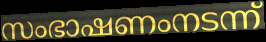
സംഭാഷണംനടന്ന്